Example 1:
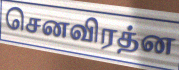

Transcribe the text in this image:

செனவிரத்ன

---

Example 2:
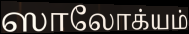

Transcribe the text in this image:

ஸாலோக்யம்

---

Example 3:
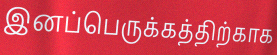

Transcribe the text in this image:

இனப்பெருக்கத்திற்காக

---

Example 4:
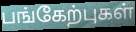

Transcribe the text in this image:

பங்கேற்புகள்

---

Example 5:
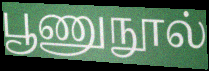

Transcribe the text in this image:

பூணுநூல்